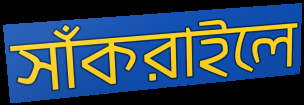
সাঁকরাইলে